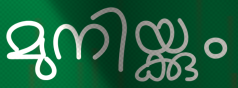
മുനിയ്ക്കും